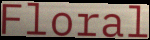
Floral